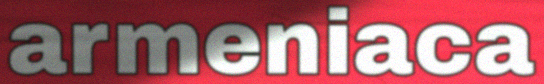
armeniaca